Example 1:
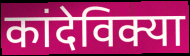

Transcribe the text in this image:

कांदेविक्या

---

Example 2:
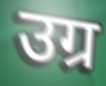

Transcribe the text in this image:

उग्र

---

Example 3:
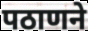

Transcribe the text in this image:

पठाणने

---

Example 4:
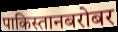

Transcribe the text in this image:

पाकिस्तानबरोबर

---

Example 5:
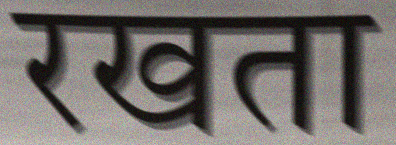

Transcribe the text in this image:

रखता